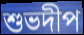
শুভদীপ